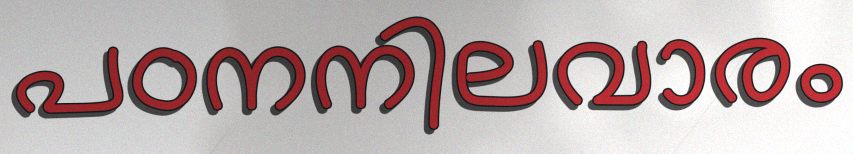
പഠനനിലവാരം